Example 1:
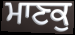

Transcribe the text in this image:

ਮਾਣਕੁ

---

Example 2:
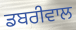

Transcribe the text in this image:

ਡਬਰੀਵਾਲ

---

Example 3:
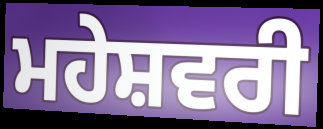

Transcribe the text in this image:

ਮਹੇਸ਼ਵਰੀ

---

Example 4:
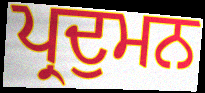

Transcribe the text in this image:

ਪ੍ਰਦੁਮਨ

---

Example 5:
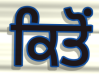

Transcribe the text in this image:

ਕਿਤੋਂ